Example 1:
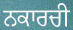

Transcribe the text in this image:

ਨਕਾਰਚੀ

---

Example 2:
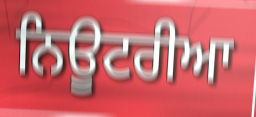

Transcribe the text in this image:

ਨਿਊਟਰੀਆ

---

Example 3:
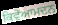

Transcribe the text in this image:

ਕਿਵੇਂਆਮਦਨ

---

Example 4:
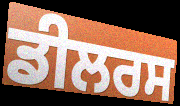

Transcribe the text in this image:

ਡੀਲਰਸ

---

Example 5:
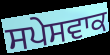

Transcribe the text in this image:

ਸਪੇਸਵਾਕ